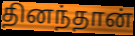
தினந்தான்